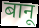
बानू